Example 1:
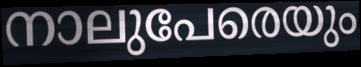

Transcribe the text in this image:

നാലുപേരെയും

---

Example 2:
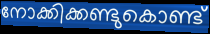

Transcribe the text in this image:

നോക്കിക്കണ്ടുകൊണ്ട്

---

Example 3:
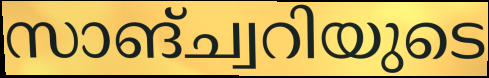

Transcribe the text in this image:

സാങ്ച്വറിയുടെ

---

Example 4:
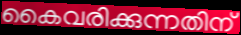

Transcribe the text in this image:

കൈവരിക്കുന്നതിന്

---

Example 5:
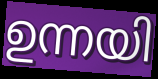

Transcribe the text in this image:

ഉന്നയി